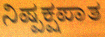
ನಿಷ್ಪಕ್ಷಪಾತ